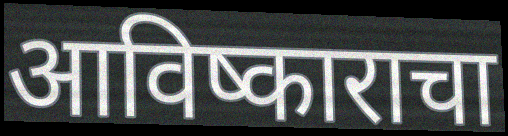
आविष्काराचा